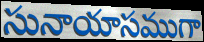
సునాయాసముగా